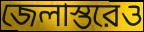
জেলাস্তরেও